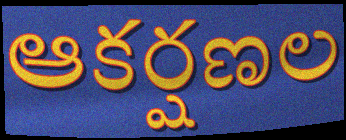
ఆకర్షణల